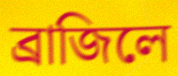
ব্রাজিলে